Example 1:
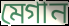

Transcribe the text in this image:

মেগান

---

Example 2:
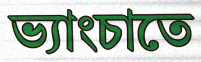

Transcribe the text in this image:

ভ্যাংচাতে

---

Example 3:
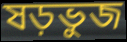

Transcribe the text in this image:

ষড়ভুজ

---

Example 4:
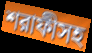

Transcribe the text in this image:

শরাফীসহ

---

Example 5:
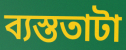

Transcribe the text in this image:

ব্যস্ততাটা